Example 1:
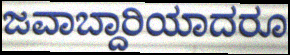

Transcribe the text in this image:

ಜವಾಬ್ದಾರಿಯಾದರೂ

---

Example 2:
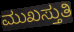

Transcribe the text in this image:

ಮುಖಸ್ತುತಿ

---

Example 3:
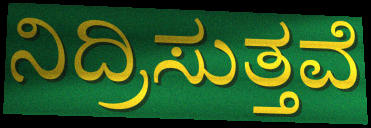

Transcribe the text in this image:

ನಿದ್ರಿಸುತ್ತವೆ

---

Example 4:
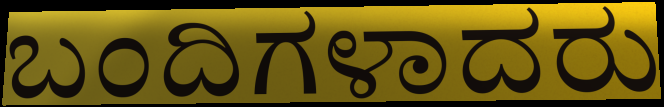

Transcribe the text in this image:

ಬಂದಿಗಳಾದರು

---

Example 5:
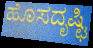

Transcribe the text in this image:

ಹೊಸದೃಷ್ಟಿ